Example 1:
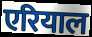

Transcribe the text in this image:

एरियाल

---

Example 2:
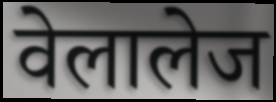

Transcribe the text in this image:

वेलालेज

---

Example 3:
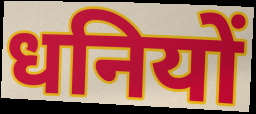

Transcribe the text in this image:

धनियों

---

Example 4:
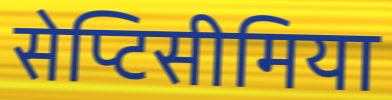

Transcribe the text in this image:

सेप्टिसीमिया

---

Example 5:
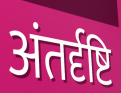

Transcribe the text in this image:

अंतर्दृष्टि